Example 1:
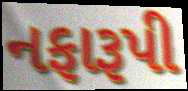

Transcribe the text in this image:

નફારૂપી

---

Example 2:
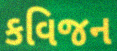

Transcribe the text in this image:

કવિજન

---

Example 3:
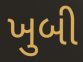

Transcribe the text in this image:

ખુબી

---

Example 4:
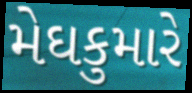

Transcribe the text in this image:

મેઘકુમારે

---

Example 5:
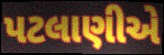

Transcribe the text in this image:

પટલાણીએ